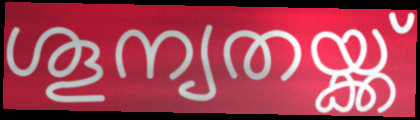
ശൂന്യതയ്ക്ക്